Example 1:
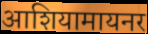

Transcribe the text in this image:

आशियामायनर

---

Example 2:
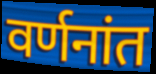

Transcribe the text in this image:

वर्णनांत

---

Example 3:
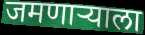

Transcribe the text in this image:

जमणाऱ्याला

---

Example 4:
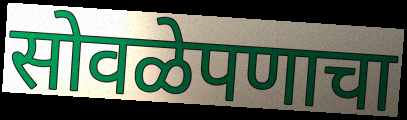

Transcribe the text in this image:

सोवळेपणाचा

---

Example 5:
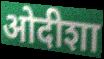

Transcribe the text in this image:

ओदीशा